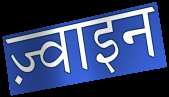
ज़्वाइन